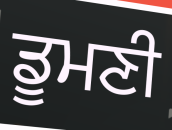
ਡੂਮਣੀ